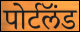
पोर्टलॅंड